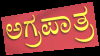
ಅಗ್ರಪಾತ್ರ